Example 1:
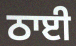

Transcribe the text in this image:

ਠਾਈ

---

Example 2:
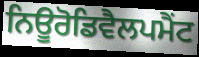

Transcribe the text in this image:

ਨਿਊਰੋਡਿਵੈਲਪਮੈਂਟ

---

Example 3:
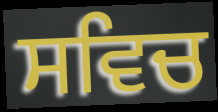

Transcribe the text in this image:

ਸਵਿਚ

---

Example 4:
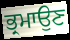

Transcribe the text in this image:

ਭ੍ਰਮਾਉਣ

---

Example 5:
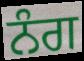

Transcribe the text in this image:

ਨੰਗ